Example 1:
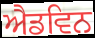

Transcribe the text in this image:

ਐਡਵਿਨ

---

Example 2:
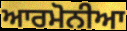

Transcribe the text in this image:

ਆਰਮੋਨੀਆ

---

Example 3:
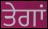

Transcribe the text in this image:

ਤੇਗਾਂ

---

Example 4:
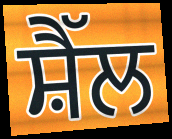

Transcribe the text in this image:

ਸ਼ੈੱਲ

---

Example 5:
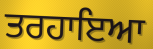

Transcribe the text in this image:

ਤਰਹਾਇਆ